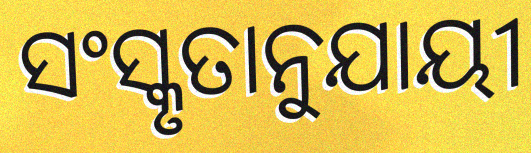
ସଂସ୍କୃତାନୁଯାୟୀ